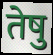
तेषु